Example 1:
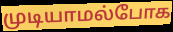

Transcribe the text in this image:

முடியாமல்போக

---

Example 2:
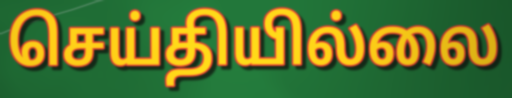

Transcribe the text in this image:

செய்தியில்லை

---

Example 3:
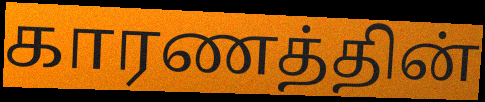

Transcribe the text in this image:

காரணத்தின்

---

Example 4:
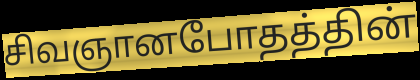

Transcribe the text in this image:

சிவஞானபோதத்தின்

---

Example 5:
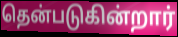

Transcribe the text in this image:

தென்படுகின்றார்